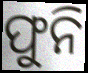
ଫୁନି